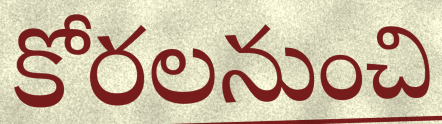
కోరలనుంచి